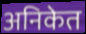
अनिकेत